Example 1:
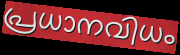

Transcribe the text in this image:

പ്രധാനവിധം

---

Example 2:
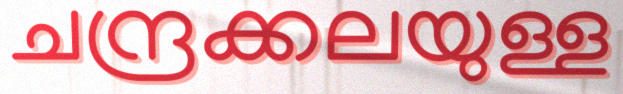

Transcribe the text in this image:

ചന്ദ്രക്കലയുള്ള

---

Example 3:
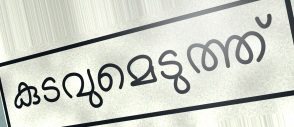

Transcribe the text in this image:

കുടവുമെടുത്ത്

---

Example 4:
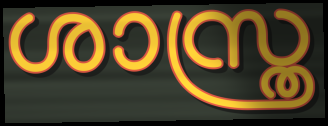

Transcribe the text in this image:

ശാസ്ത്ര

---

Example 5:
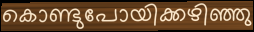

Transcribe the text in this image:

കൊണ്ടുപോയിക്കഴിഞ്ഞു